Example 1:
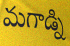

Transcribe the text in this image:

మగాడ్ని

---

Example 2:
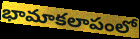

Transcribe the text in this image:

భామాకలాపంలో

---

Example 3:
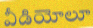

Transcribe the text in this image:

వీడియోలూ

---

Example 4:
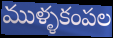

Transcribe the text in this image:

ముళ్ళకంపల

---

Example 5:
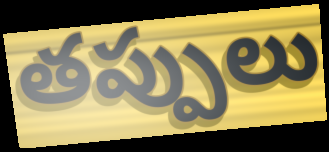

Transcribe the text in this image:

తప్పులు